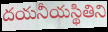
దయనీయస్థితిని